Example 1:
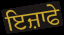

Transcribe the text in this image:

ਇਜ਼ਾਫੇ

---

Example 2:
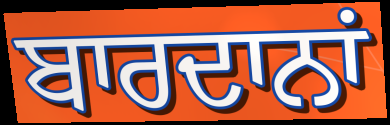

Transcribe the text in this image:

ਬਾਰਦਾਨਾਂ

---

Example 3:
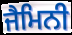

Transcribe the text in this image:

ਜੈਮਿਨੀ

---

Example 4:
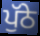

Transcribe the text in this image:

ਪੁੱਠੇ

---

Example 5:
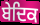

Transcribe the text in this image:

ਬੇਦਿਕ